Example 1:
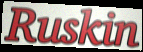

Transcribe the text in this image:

Ruskin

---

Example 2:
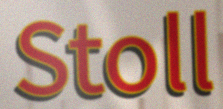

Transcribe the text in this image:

Stoll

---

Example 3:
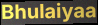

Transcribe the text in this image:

Bhulaiyaa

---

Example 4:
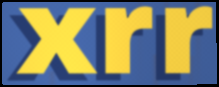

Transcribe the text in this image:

xrr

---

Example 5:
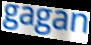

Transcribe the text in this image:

gagan